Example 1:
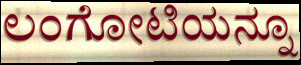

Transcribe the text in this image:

ಲಂಗೋಟಿಯನ್ನೂ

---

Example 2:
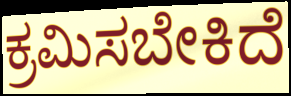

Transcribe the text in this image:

ಕ್ರಮಿಸಬೇಕಿದೆ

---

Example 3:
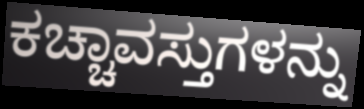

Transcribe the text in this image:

ಕಚ್ಚಾವಸ್ತುಗಳನ್ನು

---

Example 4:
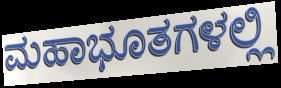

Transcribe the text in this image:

ಮಹಾಭೂತಗಳಲ್ಲಿ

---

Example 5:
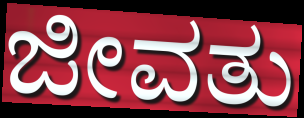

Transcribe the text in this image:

ಜೀವತು